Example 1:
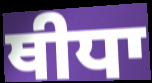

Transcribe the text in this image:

ਥੀਧਾ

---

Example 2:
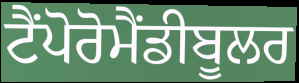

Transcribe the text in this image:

ਟੈਂਪੋਰੋਮੈਂਡੀਬੂਲਰ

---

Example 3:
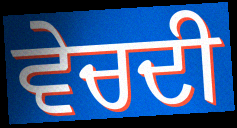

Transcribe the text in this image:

ਵੇਚਦੀ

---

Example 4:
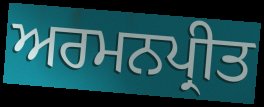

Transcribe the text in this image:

ਅਰਮਨਪ੍ਰੀਤ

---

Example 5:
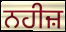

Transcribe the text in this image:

ਨਹੀਜ਼